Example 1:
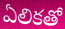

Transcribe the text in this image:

ఏలికతో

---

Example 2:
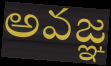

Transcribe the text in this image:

అవజ్ఞ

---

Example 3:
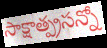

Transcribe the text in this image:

సాక్షాత్ప్రసన్నో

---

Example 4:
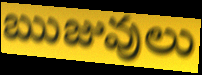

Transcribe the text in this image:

ఋజువులు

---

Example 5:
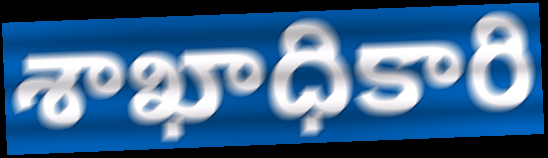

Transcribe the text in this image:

శాఖాధికారి